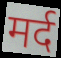
मर्द